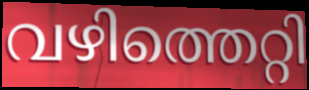
വഴിത്തെറ്റി